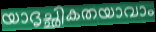
യാദൃച്ഛികതയാവാം